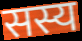
सस्य